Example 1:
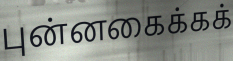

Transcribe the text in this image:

புன்னகைக்கக்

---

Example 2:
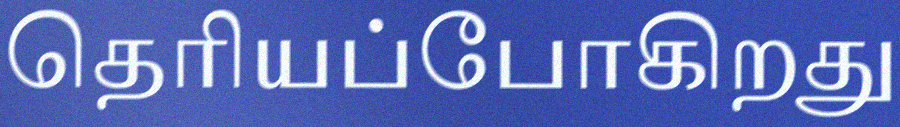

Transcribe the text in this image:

தெரியப்போகிறது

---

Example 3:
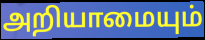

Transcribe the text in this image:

அறியாமையும்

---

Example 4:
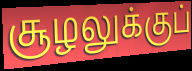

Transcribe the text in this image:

சூழலுக்குப்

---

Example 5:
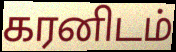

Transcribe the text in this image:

கரனிடம்